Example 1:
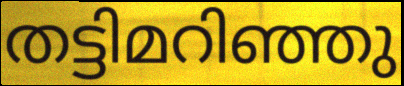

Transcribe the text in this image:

തട്ടിമറിഞ്ഞു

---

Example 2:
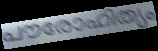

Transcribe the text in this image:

പൗരോഹിത്യം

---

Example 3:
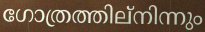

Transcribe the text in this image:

ഗോത്രത്തില്നിന്നും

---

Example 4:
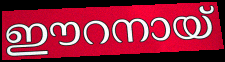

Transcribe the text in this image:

ഈറനായ്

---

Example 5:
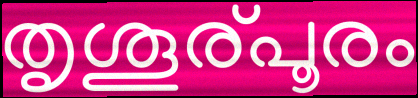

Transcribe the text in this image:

തൃശൂര്പൂരം